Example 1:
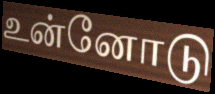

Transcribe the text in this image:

உன்னோடு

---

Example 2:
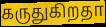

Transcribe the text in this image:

கருதுகிறதா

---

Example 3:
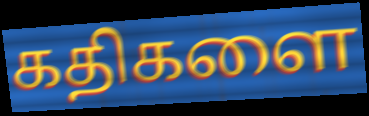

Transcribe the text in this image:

கதிகளை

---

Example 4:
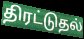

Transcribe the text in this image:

திரட்டுதல்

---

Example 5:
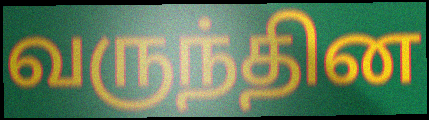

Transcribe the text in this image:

வருந்தின